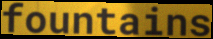
fountains